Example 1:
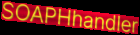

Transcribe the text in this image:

SOAPHhandler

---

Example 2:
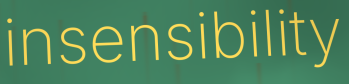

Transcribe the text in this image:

insensibility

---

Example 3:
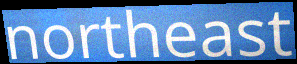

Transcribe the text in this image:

northeast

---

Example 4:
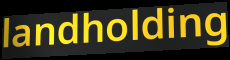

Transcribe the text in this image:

landholding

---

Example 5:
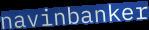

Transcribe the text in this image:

navinbanker